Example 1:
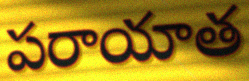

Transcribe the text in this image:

పరాయాత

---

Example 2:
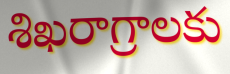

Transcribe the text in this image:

శిఖరాగ్రాలకు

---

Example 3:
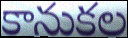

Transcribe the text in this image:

కానుకల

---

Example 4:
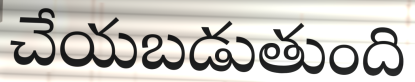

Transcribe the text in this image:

చేయబడుతుంది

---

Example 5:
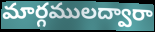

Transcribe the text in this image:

మార్గములద్వారా